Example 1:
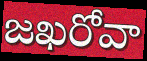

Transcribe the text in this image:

జఖరోవా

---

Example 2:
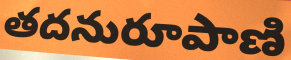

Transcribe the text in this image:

తదనురూపాణి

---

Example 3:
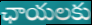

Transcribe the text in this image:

ఛాయలకు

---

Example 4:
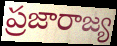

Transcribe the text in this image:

ప్రజారాజ్య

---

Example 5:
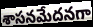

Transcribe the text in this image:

శాసనమేదనగా